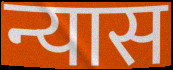
न्‍यास